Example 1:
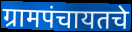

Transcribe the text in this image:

ग्रामपंचायतचे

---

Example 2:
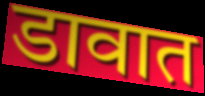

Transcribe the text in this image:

डावात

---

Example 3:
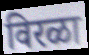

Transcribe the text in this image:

विरळा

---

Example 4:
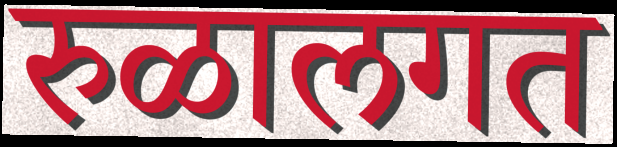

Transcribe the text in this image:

रुळालगत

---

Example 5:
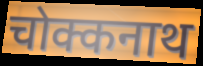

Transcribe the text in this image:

चोक्कनाथ